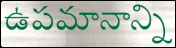
ఉపమానాన్ని